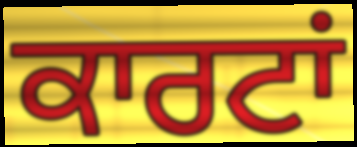
ਕਾਰਟਾਂ